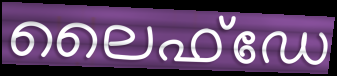
ലൈഫ്ഡേ